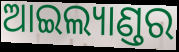
ଆଇଲ୍ୟାଣ୍ଡର